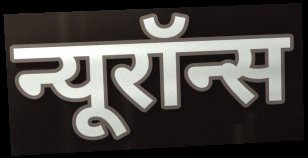
न्यूरॉन्स